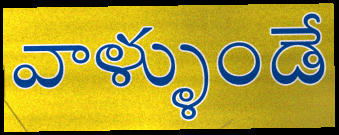
వాళ్ళుండే